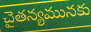
చైతన్యమునకు